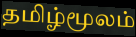
தமிழ்மூலம்